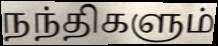
நந்திகளும்